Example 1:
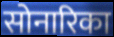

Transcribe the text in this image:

सोनारिका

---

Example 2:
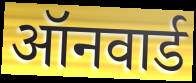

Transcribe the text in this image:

ऑनवार्ड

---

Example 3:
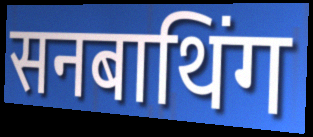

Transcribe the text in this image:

सनबाथिंग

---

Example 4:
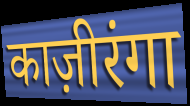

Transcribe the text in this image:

काज़ीरंगा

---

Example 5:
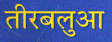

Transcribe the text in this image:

तीरबलुआ